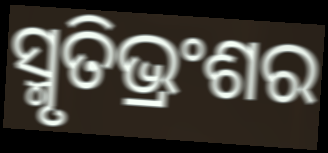
ସ୍ମୃତିଭ୍ରଂଶର